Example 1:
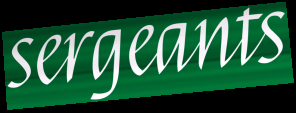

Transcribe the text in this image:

sergeants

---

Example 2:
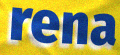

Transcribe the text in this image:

rena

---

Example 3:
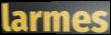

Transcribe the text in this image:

larmes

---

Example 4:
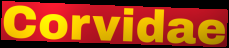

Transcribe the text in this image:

Corvidae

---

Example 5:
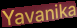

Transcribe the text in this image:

Yavanika